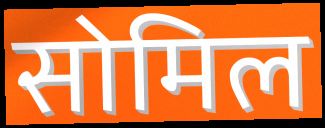
सोमिल